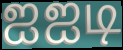
ஐஐடி